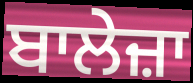
ਬਾਲੇਜ਼ਾ